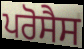
ਪਰੋਸੈਸ